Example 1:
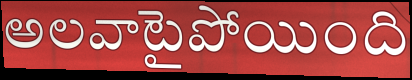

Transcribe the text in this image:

అలవాటైపోయింది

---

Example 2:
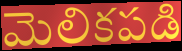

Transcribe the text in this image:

మెలికపడి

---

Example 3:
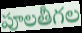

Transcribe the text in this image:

పూలతీగల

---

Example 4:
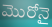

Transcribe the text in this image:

మొరోనై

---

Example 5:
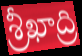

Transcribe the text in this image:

శ్రీఖాద్రి